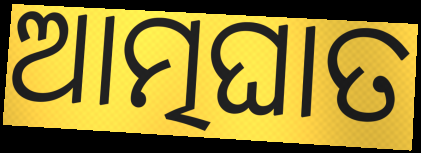
ଆତ୍ମଘାତ